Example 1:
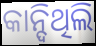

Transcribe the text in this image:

କାନ୍ଦିଥିଲି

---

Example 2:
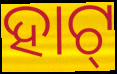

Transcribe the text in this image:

ହାଟ୍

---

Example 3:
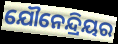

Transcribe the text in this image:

ଯୌନେନ୍ଦ୍ରିୟର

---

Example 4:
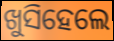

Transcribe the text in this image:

ଖୁସିହେଲେ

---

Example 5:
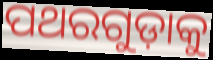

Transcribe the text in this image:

ପଥରଗୁଡ଼ାକୁ